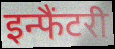
इन्फैंटरी